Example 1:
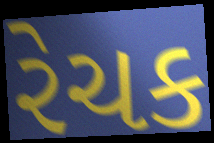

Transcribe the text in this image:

રેચક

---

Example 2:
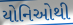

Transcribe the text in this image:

યોનિઓથી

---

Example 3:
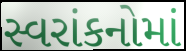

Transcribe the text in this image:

સ્વરાંકનોમાં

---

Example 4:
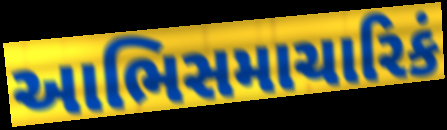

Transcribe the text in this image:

આભિસમાચારિકં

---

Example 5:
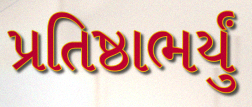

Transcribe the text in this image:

પ્રતિષ્ઠાભર્યું